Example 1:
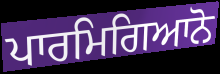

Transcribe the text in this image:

ਪਾਰਮਿਗਿਆਨੋ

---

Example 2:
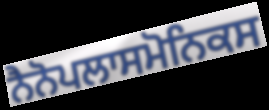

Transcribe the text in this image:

ਨੈਨੋਪਲਾਸਮੋਨਿਕਸ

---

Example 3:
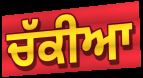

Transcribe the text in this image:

ਚੱਕੀਆ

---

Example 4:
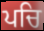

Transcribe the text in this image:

ਪਚਿ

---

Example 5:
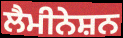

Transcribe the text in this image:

ਲੈਮੀਨੇਸ਼ਨ